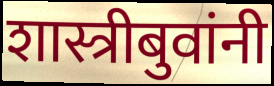
शास्त्रीबुवांनी